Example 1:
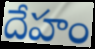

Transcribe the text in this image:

దేహం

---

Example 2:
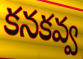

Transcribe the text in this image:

కనకవ్వ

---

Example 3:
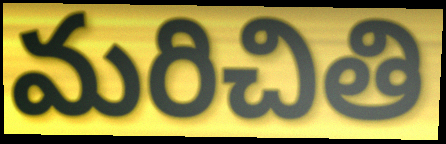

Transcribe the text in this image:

మరిచితి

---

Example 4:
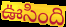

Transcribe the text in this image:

ఊసింది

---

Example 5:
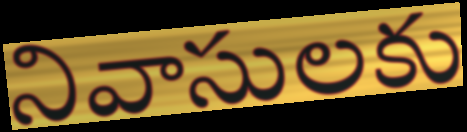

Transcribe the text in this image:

నివాసులకు